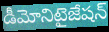
డీమోనిటైజేషన్